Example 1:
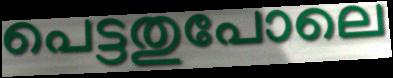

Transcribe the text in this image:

പെട്ടതുപോലെ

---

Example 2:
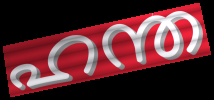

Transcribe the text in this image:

ഹന്ത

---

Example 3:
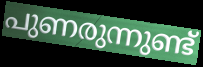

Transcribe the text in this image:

പുണരുന്നുണ്ട്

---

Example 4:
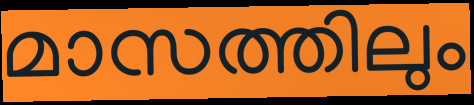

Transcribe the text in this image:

മാസത്തിലും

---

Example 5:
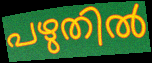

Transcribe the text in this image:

പഴുതിൽ